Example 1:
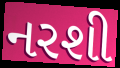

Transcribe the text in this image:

નરશી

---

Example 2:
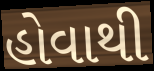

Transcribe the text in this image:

હોવાથી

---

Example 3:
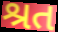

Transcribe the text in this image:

શ્રત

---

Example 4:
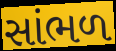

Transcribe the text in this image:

સાંભળ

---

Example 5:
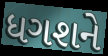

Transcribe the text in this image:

ધગશને